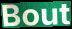
Bout